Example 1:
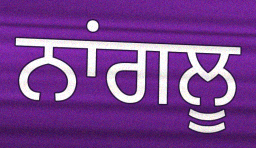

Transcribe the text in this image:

ਨਾਂਗਲੂ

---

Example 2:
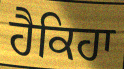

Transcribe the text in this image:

ਹੈਕਿਹਾ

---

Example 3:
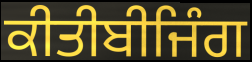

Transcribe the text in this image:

ਕੀਤੀਬੀਜਿੰਗ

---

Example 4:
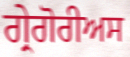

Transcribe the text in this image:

ਗ੍ਰੇਗੋਰੀਅਸ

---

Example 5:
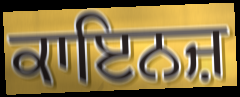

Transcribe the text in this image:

ਕਾਇਨਜ਼